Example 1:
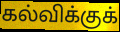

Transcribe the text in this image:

கல்விக்குக்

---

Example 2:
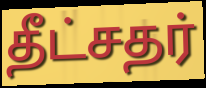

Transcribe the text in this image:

தீட்சதர்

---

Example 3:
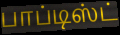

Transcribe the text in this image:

பாப்டிஸ்ட்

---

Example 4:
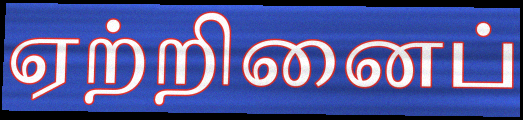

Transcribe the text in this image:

ஏற்றினைப்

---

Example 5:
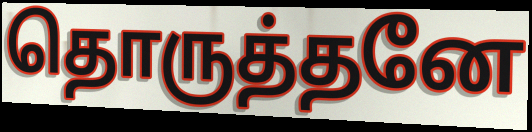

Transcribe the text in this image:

தொருத்தனே